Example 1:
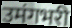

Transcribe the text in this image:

उमंगभरी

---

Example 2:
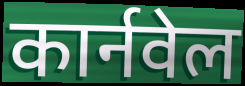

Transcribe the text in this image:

कार्नवेल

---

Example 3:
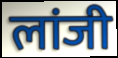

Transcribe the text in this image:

लांजी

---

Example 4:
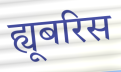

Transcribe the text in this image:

ह्यूबरिस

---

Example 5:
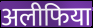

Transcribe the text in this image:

अलीफिया